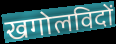
खगोलविदों